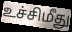
உச்சிமீது